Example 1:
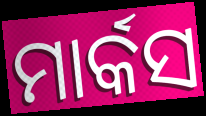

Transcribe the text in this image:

ମାର୍କସ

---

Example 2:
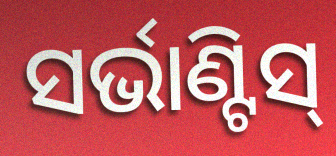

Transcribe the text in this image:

ସର୍ଭାଣ୍ଟିସ୍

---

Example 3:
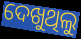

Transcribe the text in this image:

ଦେଖୁଥିଲୁ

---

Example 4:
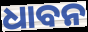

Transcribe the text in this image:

ଧାବନ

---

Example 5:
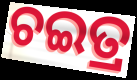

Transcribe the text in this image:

ଚଇତ୍ର